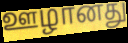
ஊழானது